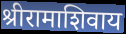
श्रीरामाशिवाय